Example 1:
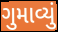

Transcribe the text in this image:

ગુમાવ્યું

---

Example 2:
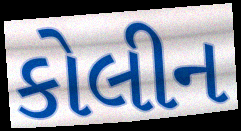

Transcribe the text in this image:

કોલીન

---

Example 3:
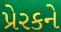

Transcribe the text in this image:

પ્રેરકને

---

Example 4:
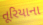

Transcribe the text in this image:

તૂરિયાના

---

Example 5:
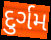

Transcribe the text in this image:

દુર્ગમ